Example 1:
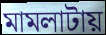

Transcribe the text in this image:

মামলাটায়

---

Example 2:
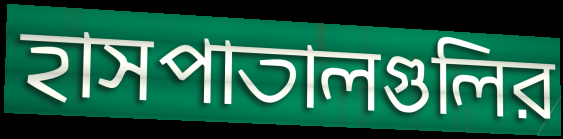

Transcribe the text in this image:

হাসপাতালগুলির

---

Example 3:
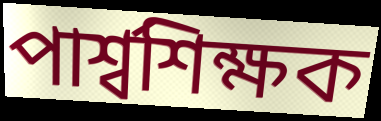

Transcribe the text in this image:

পার্শ্বশিক্ষক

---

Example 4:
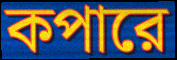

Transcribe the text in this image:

কপারে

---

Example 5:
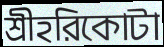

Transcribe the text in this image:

শ্রীহরিকোটা